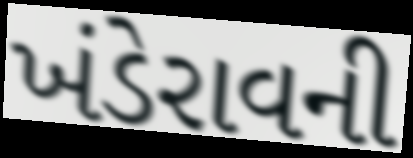
ખંડેરાવની